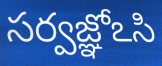
సర్వజ్ఞోఽసి